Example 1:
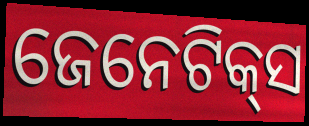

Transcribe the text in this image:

ଜେନେଟିକ୍‌ସ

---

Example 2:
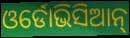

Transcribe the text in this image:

ଓର୍ଡୋଭିସିଆନ୍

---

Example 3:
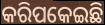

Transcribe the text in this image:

କରିପକେଇଛି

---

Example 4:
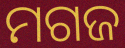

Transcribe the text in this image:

ମଗଜ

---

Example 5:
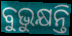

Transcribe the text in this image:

ବୁଭୁକ୍ଷନ୍ତି